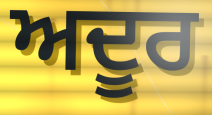
ਅਦੂਰ